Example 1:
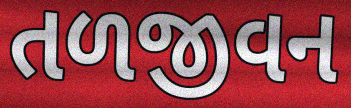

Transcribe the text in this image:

તળજીવન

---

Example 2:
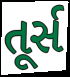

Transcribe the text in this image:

તૂર્સ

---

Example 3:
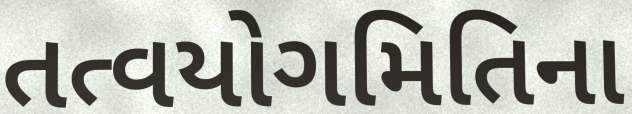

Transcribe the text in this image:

તત્વયોગમિતિના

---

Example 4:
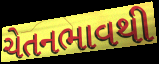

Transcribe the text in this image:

ચેતનભાવથી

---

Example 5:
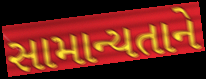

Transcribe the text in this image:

સામાન્યતાને